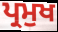
ਪ੍ਰਮੁਖ